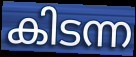
കിടന്ന